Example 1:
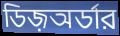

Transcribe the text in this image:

ডিজ়অর্ডার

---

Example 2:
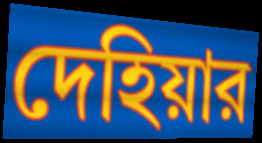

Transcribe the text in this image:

দেহিয়ার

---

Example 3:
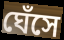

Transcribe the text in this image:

ঘেঁসে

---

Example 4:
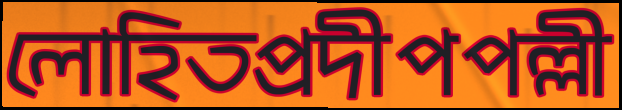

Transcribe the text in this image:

লোহিতপ্রদীপপল্লী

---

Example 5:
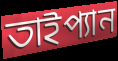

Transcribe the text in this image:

তাইপ্যান